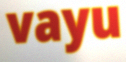
vayu